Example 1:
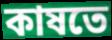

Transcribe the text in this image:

কাষতে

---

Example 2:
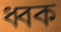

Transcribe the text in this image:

ধ্বক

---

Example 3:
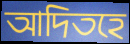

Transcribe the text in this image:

আদিতহে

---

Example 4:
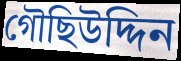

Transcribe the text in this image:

গৌছিউদ্দিন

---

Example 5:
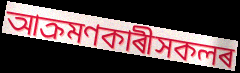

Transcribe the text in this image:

আক্ৰমণকাৰীসকলৰ